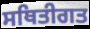
ਸਥਿਤੀਗਤ